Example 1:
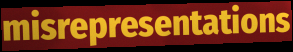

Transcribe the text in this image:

misrepresentations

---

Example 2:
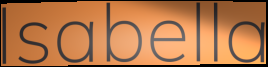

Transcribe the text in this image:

Isabella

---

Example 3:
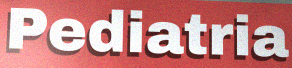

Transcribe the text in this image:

Pediatria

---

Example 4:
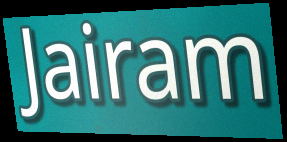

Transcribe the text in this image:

Jairam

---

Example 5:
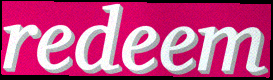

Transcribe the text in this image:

redeem